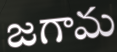
జగామ